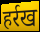
हर्रख